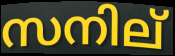
സനില്